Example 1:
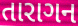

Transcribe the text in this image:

તારાગન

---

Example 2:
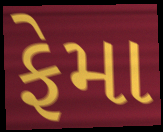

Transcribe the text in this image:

ફેમા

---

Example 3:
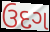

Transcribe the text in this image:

ઉદગ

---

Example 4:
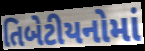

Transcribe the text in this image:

તિબેટીયનોમાં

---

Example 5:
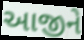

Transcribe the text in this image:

આજીને